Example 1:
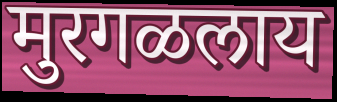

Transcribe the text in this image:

मुरगळलाय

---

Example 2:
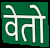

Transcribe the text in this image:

वेतो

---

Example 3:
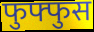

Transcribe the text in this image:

फुफ्फुस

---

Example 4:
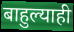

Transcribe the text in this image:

बाहुल्याही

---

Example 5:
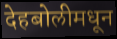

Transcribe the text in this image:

देहबोलीमधून